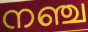
നഞ്ച